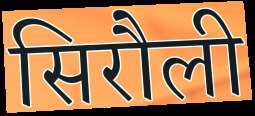
सिरौली